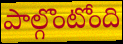
పాల్గొంటోంది